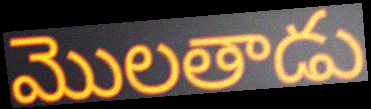
మొలతాడు